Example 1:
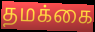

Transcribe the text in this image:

தமக்கை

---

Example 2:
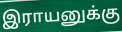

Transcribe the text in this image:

இராயனுக்கு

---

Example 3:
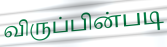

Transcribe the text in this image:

விருப்பின்படி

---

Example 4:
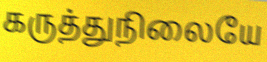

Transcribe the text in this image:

கருத்துநிலையே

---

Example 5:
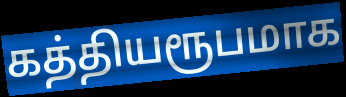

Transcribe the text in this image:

கத்தியரூபமாக